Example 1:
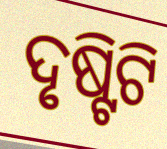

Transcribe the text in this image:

ଦୃଷ୍ଟିଟି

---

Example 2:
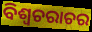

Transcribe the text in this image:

ବିଶ୍ଵଚରାଚର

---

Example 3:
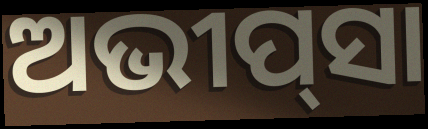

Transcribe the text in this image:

ଅଭୀପ୍‌ସା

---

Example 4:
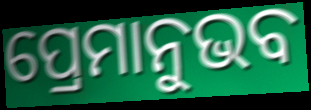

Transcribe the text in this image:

ପ୍ରେମାନୁଭବ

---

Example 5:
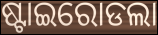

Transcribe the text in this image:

ଷ୍ଟାଇରୋଡଲା